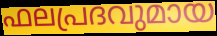
ഫലപ്രദവുമായ